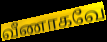
வீணாகவே